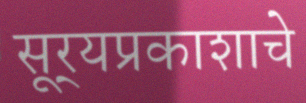
सूर्यप्रकाशाचे